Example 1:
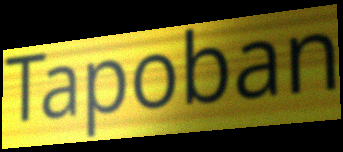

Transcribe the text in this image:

Tapoban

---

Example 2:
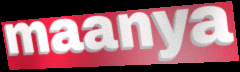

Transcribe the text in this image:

maanya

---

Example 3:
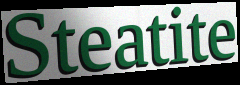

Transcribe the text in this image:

Steatite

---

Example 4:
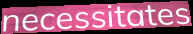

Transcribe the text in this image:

necessitates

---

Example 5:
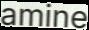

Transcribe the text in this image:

amine